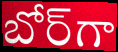
బోర్‌గా